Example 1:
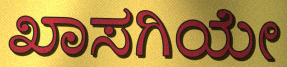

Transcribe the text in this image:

ಖಾಸಗಿಯೇ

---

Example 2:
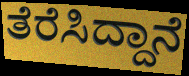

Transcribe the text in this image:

ತೆರೆಸಿದ್ದಾನೆ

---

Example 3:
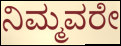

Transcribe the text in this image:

ನಿಮ್ಮವರೇ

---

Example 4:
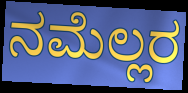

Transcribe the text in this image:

ನಮೆಲ್ಲರ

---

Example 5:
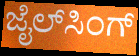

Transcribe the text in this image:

ಜೈಲ್‌ಸಿಂಗ್